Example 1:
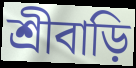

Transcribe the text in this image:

শ্রীবাড়ি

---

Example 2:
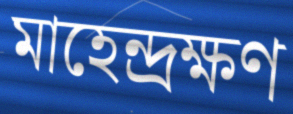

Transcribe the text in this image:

মাহেন্দ্রক্ষণ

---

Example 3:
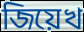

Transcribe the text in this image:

জিয়েখ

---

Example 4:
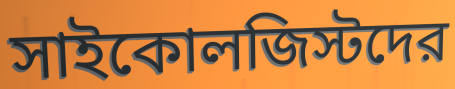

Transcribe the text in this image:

সাইকোলজিস্টদের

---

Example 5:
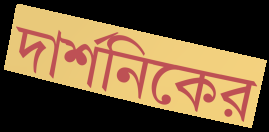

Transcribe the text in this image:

দার্শনিকের